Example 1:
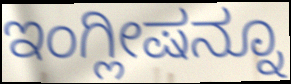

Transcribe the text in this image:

ಇಂಗ್ಲೀಷನ್ನೂ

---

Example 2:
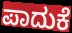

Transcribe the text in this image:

ಪಾದುಕೆ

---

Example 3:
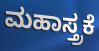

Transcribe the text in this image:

ಮಹಾಸ್ತ್ರಕೆ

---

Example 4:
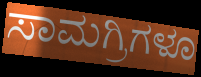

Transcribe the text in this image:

ಸಾಮಗ್ರಿಗಳೂ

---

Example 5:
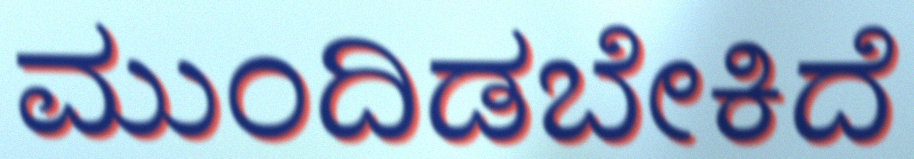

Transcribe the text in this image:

ಮುಂದಿಡಬೇಕಿದೆ